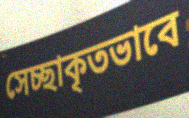
সেচ্ছাকৃতভাবে